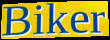
Biker